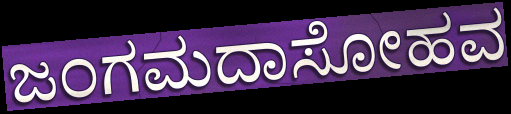
ಜಂಗಮದಾಸೋಹವ